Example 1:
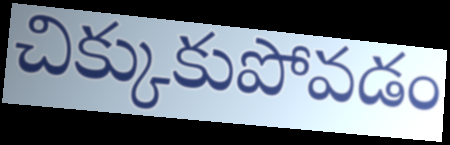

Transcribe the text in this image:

చిక్కుకుపోవడం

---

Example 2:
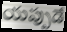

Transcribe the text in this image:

యప్పుడే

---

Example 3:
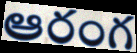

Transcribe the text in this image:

ఆరంగ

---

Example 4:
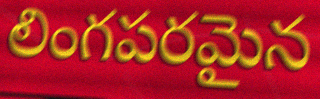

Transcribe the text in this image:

లింగపరమైన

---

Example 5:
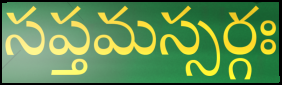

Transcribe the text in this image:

సప్తమస్సర్గః